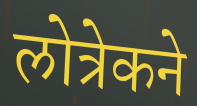
लोत्रेकने